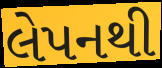
લેપનથી